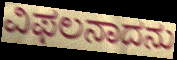
ವಿಫಲನಾದನು